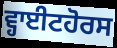
ਵ੍ਹਾਈਟਹੋਰਸ